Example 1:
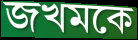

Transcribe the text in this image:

জখমকে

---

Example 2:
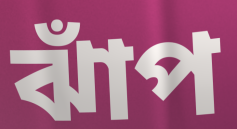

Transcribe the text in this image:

ঝাঁপ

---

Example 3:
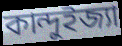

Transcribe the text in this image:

কান্দুইজ্যা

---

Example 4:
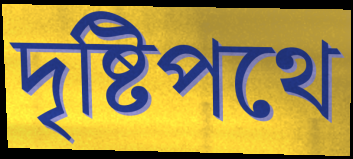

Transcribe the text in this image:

দৃষ্টিপথে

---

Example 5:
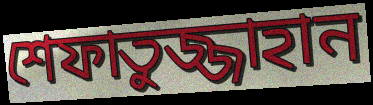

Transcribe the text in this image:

শেফাতুজ্জাহান